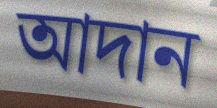
আদান